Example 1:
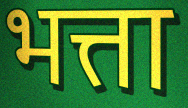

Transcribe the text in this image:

भत्ता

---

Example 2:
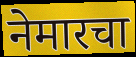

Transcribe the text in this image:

नेमारचा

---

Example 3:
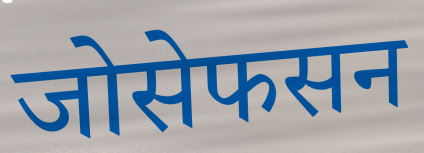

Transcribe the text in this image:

जोसेफसन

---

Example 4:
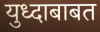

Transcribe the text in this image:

युध्दाबाबत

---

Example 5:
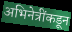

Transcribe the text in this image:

अभिनेत्रींकडून